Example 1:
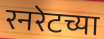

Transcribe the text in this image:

रनरेटच्या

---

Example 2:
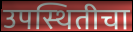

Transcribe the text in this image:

उपस्थितीचा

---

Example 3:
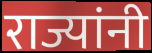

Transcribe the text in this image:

राज्यांनी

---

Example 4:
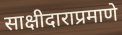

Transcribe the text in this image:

साक्षीदाराप्रमाणे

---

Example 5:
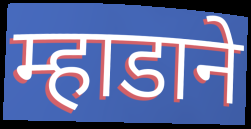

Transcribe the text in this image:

म्हाडाने